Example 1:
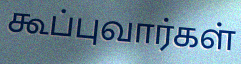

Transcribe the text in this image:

கூப்புவார்கள்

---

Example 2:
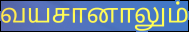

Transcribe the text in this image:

வயசானாலும்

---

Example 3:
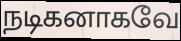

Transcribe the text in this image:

நடிகனாகவே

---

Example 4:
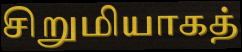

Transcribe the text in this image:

சிறுமியாகத்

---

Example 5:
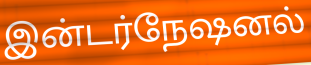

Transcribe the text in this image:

இன்டர்நேஷனல்